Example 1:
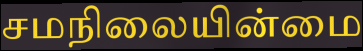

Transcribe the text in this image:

சமநிலையின்மை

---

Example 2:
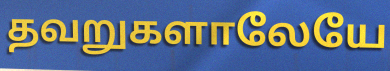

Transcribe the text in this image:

தவறுகளாலேயே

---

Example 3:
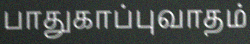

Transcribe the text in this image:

பாதுகாப்புவாதம்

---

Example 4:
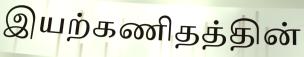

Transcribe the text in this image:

இயற்கணிதத்தின்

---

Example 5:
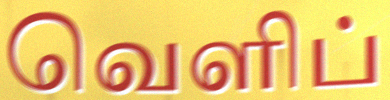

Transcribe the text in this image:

வெளிப்